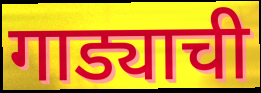
गाड्याची